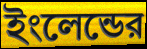
ইংলেন্ডের